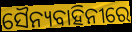
ସୈନ୍ୟବାହିନୀରେ